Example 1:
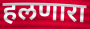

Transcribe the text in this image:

हलणारा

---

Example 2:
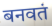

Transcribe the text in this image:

बनवतं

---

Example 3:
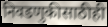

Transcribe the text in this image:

निवडणुकीसाठीही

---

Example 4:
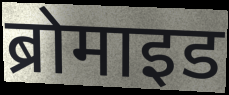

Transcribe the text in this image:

ब्रोमाइड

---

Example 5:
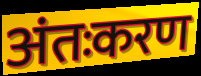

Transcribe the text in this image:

अंतःकरण